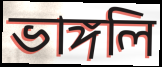
ভাঙ্গলি